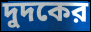
দুদকের